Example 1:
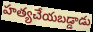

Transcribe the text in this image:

హత్యచేయబడ్డాడు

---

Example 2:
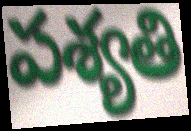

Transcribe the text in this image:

పశ్యతి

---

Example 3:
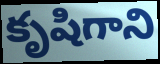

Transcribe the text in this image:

కృషిగాని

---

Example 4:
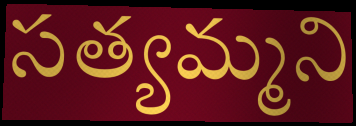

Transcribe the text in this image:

సత్యమ్మని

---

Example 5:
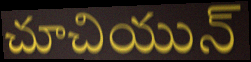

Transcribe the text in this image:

చూచియున్